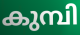
കുമ്പി